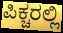
ಪಿಕ್ಚರಲ್ಲಿ